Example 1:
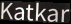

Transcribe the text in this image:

Katkar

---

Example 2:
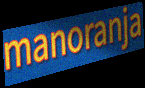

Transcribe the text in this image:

manoranja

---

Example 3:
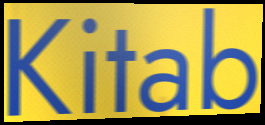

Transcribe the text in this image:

Kitab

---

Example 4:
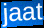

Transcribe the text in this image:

jaat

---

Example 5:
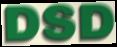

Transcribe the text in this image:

DSD